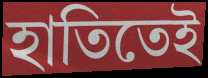
হাতিতেই